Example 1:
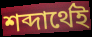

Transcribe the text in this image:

শব্দার্থেই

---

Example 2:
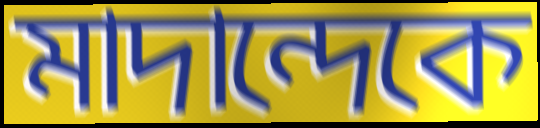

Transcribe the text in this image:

মাদান্দেকে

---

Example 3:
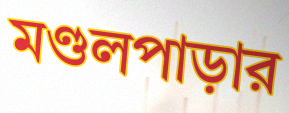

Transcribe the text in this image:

মণ্ডলপাড়ার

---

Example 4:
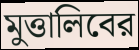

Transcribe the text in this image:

মুত্তালিবের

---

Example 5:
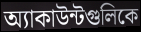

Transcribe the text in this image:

অ্যাকাউন্টগুলিকে